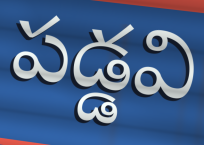
పడ్డవి